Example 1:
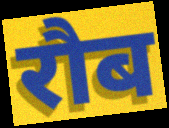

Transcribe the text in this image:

रौब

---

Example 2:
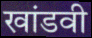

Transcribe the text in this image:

खांडवी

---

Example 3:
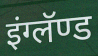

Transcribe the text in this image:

इंग्लॅण्ड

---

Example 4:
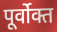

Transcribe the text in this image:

पूर्वोक्त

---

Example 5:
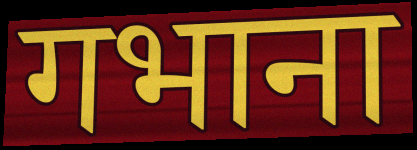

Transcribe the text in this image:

गभाना